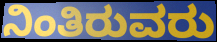
ನಿಂತಿರುವರು